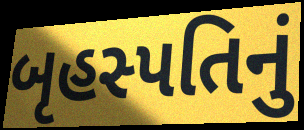
બૃહસ્પતિનું